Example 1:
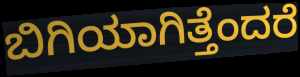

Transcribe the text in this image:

ಬಿಗಿಯಾಗಿತ್ತೆಂದರೆ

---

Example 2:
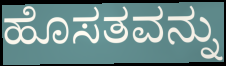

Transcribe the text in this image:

ಹೊಸತವನ್ನು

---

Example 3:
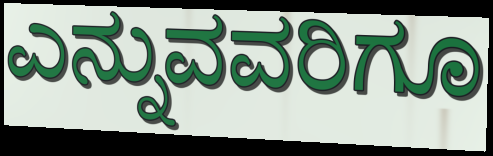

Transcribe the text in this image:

ಎನ್ನುವವರಿಗೂ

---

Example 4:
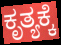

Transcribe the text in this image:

ಕೃತ್ಯಕ್ಕೆ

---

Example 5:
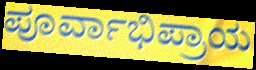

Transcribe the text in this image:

ಪೂರ್ವಾಭಿಪ್ರಾಯ